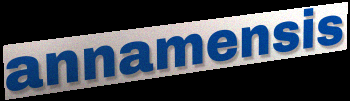
annamensis